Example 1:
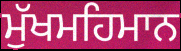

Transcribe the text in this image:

ਮੁੱਖਮਹਿਮਾਨ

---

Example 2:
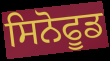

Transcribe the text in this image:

ਸਿਨੋਫੂਡ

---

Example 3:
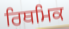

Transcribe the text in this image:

ਰਿਥਮਿਕ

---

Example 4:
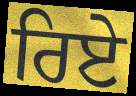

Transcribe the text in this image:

ਰਿਏ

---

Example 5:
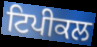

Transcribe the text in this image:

ਟਿਪੀਕਲ